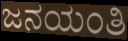
ಜನಯಂತಿ